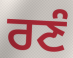
ਰਣੰ